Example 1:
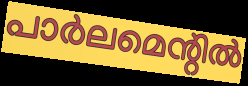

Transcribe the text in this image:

പാർലമെന്റിൽ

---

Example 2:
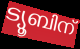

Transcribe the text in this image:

ട്യൂബിന്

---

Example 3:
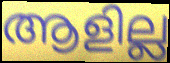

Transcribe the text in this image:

ആളില്ല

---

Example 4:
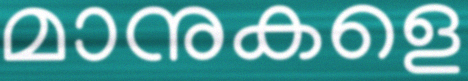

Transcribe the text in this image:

മാനുകളെ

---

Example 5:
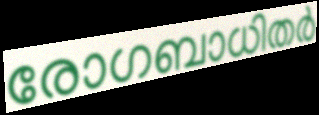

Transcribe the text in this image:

രോഗബാധിതർ